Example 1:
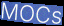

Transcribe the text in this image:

MOCs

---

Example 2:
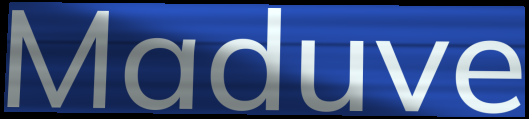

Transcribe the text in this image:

Maduve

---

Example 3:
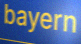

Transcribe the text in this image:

bayern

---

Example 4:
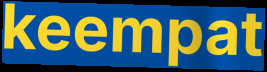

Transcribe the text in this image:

keempat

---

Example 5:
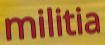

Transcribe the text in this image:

militia